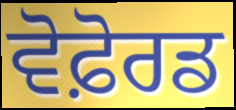
ਵੋਫ਼ੋਰਡ